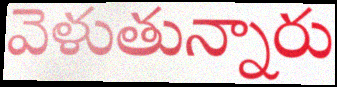
వెళుతున్నారు